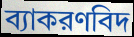
ব্যাকরণবিদ